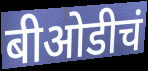
बीओडीचं